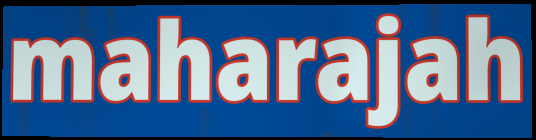
maharajah